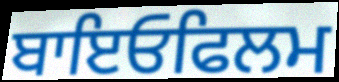
ਬਾਇਓਫਿਲਮ